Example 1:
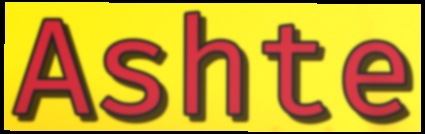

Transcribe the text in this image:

Ashte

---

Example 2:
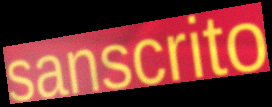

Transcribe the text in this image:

sanscrito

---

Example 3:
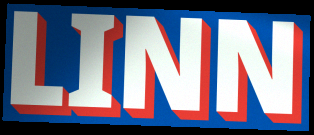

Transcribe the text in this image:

LINN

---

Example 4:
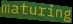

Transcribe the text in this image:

maturing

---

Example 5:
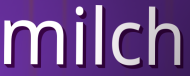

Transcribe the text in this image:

milch